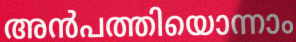
അൻപത്തിയൊന്നാം